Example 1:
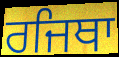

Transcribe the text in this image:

ਰਜਿਥਾ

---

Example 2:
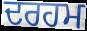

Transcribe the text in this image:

ਦਰਹਮ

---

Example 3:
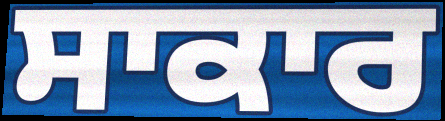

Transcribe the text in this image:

ਸਾਕਾਰ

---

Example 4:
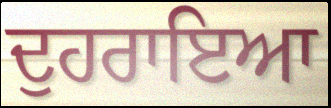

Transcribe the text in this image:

ਦੁਹਰਾਇਆ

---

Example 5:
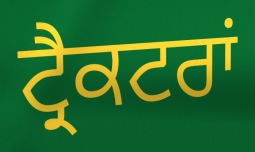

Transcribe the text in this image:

ਟ੍ਰੈਕਟਰਾਂ